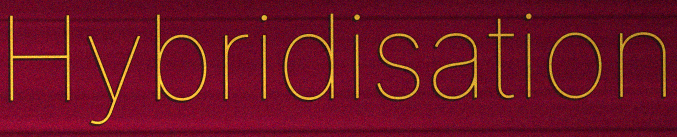
Hybridisation